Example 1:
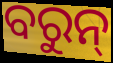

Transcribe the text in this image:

ବରୁନ୍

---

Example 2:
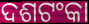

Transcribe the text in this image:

ଦଶଟଂକା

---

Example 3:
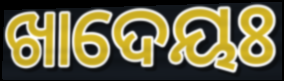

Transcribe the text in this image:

ଖାଦେୟଃ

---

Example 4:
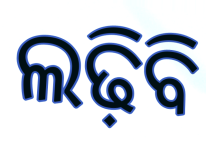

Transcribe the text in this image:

ଲଢ଼ିବି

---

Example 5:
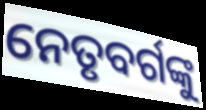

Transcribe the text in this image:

ନେତୃବର୍ଗଙ୍କୁ